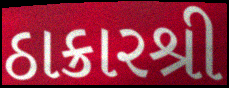
ઠાક્રારશ્રી